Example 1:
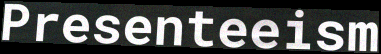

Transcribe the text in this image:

Presenteeism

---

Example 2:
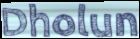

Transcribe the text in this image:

Dholun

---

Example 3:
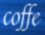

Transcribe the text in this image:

coffe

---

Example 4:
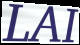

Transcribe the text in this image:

LAI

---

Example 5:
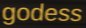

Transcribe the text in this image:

godess